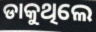
ଡାକୁଥିଲେ